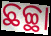
ଛଚ୍ଛା